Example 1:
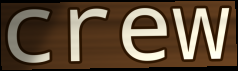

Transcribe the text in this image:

crew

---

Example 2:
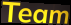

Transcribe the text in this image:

Team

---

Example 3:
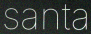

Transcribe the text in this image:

santa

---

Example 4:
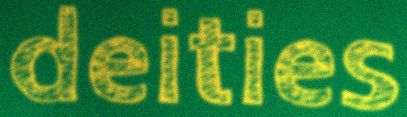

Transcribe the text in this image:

deities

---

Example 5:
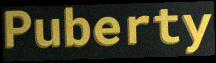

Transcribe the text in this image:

Puberty